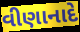
વીણાનાદે